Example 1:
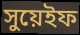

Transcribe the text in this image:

সুয়েইফ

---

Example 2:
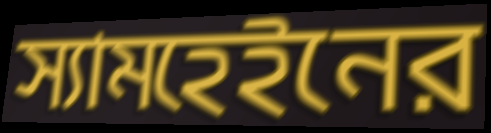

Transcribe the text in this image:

স্যামহেইনের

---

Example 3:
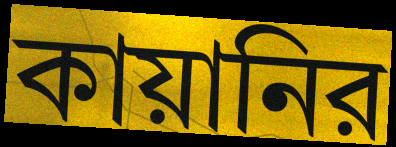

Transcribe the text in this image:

কায়ানির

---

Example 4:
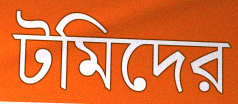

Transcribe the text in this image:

টমিদের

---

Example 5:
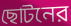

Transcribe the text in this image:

ছোটনের